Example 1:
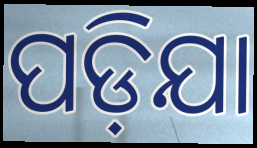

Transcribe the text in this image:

ପଡ଼ିଯା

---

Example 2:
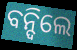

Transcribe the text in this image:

ବନ୍ଦିଲେ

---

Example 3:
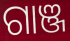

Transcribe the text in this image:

ଗାଞ୍ଜ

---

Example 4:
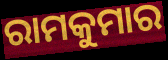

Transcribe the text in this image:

ରାମକୁମାର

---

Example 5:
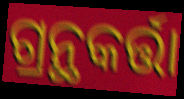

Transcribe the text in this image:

ଗ୍ରନ୍ଥକର୍ତ୍ତା